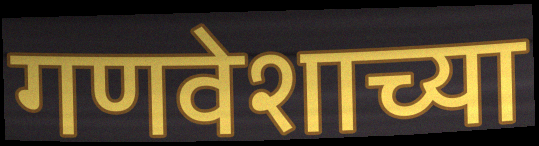
गणवेशाच्या